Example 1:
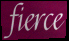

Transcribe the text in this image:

fierce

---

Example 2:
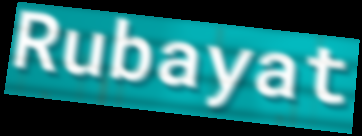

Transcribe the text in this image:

Rubayat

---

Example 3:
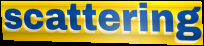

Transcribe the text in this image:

scattering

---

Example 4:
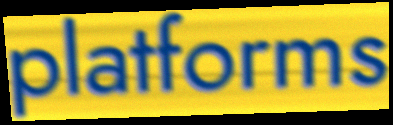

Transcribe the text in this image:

platforms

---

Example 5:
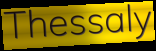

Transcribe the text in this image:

Thessaly